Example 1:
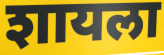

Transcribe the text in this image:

शायला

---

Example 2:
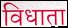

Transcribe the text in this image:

विधाता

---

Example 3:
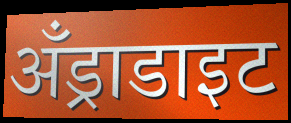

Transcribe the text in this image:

अँड्राडाइट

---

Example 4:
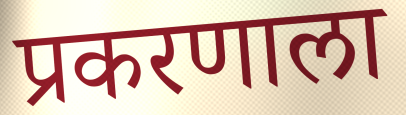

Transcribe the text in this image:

प्रकरणाला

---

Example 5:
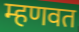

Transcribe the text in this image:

म्हणवत